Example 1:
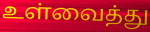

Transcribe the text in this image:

உள்வைத்து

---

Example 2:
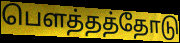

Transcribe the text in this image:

பௌத்தத்தோடு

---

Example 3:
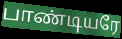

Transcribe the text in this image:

பாண்டியரே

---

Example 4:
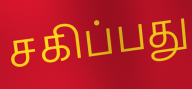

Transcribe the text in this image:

சகிப்பது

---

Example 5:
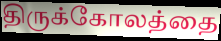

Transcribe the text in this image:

திருக்கோலத்தை